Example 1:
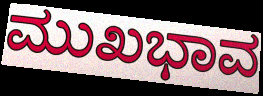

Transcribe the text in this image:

ಮುಖಭಾವ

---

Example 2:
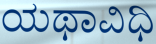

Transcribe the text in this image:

ಯಥಾವಿಧಿ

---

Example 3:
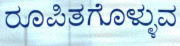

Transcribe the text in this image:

ರೂಪಿತಗೊಳ್ಳುವ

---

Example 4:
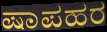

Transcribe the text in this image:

ಷಾಪಹರ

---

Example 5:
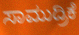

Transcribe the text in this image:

ಸಾಮುದ್ರಿಕೆ